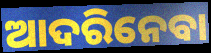
ଆଦରିନେବା